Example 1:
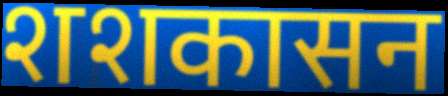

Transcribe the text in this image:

शशकासन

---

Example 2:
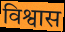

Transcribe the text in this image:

विश्वास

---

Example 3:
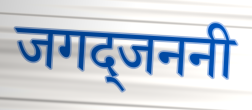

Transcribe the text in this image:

जगद्जननी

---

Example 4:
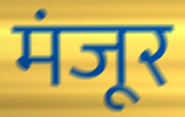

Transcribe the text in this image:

मंजूर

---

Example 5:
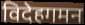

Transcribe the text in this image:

विदेहगमन